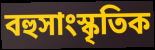
বহুসাংস্কৃতিক